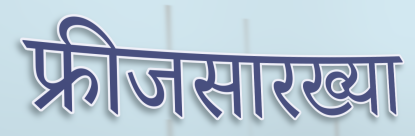
फ्रीजसारख्या